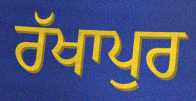
ਰੱਖਾਪੁਰ